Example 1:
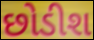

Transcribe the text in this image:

છોડીશ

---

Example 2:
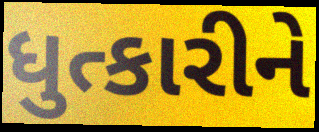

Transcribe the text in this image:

ધુત્કારીને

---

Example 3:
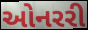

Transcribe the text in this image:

ઓનરરી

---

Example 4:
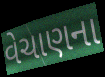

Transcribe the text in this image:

વેચાણના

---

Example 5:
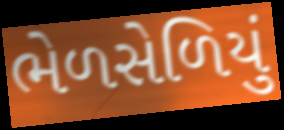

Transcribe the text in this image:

ભેળસેળિયું